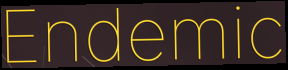
Endemic